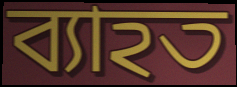
ব্যাহত